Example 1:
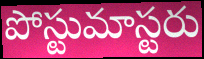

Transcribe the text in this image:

పోస్టుమాస్టరు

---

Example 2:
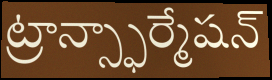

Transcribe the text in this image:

ట్రాన్స్ఫార్మేషన్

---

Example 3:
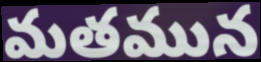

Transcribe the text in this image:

మతమున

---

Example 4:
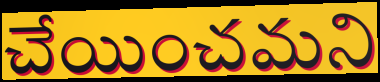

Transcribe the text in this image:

చేయించమని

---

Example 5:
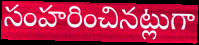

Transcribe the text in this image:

సంహరించినట్లుగా